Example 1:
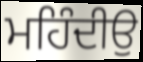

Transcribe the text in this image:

ਮਹਿੰਦੀਉ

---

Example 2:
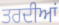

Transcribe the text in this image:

ਤਰਦੀਆਂ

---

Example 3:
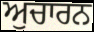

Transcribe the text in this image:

ਅੁਚਾਰਨ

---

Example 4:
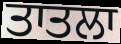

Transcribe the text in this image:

ਤਾਤਲਾ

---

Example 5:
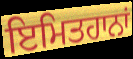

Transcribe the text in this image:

ਇਮਿਤਹਾਨਾਂ